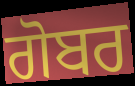
ਗੋਬਰ